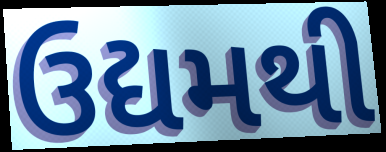
ઉદ્યમથી